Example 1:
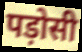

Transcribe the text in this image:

पड़ोसी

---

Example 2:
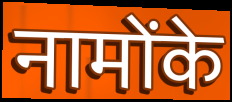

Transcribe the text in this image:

नामोंके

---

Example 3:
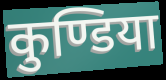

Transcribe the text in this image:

कुण्डिया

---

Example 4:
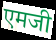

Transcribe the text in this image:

एमजी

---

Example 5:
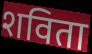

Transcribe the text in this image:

शविता